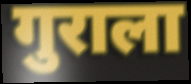
गुराला